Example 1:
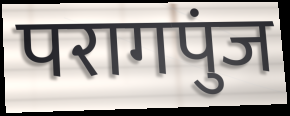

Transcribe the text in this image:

परागपुंज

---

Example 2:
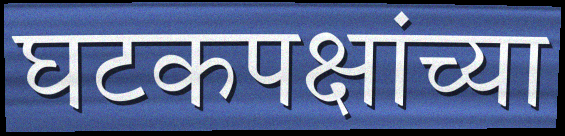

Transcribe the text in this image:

घटकपक्षांच्या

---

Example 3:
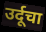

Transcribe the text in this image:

उर्दूचा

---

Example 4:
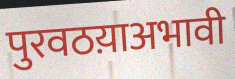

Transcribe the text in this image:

पुरवठय़ाअभावी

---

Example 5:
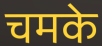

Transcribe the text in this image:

चमके